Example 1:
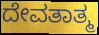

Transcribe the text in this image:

ದೇವತಾತ್ಮ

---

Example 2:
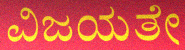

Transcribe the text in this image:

ವಿಜಯತೇ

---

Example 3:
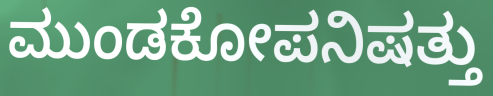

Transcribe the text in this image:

ಮುಂಡಕೋಪನಿಷತ್ತು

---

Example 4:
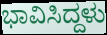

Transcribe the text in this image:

ಭಾವಿಸಿದ್ದಳು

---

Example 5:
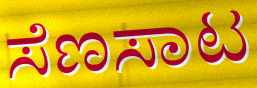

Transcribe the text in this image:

ಸೆಣಸಾಟ